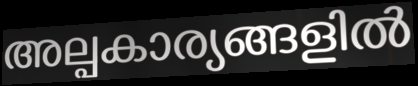
അല്പകാര്യങ്ങളിൽ